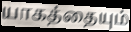
யாகத்தையும்